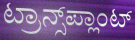
ಟ್ರಾನ್ಸ್‌ಪ್ಲಾಂಟ್